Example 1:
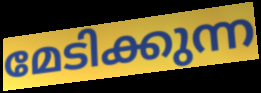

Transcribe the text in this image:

മേടിക്കുന്ന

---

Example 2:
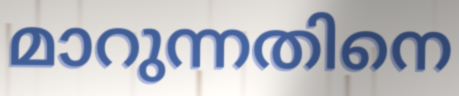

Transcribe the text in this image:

മാറുന്നതിനെ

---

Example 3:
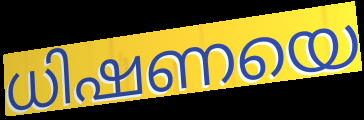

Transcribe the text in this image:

ധിഷണയെ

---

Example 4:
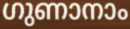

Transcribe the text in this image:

ഗുണാനാം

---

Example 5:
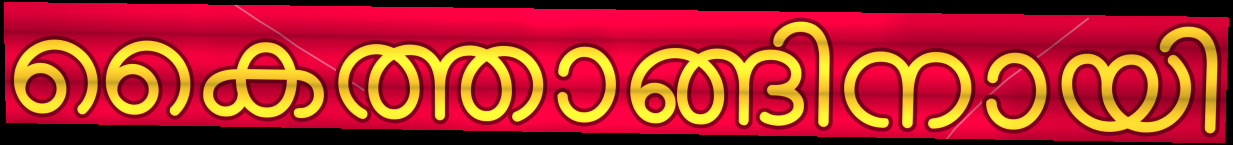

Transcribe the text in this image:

കൈത്താങ്ങിനായി